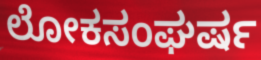
ಲೋಕಸಂಘರ್ಷ